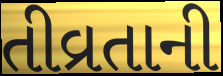
તીવ્રતાની